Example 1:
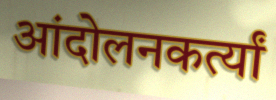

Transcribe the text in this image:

आंदोलनकर्त्यां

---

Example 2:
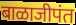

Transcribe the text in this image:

बाळाजीपंत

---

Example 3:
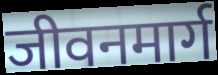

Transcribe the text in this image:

जीवनमार्ग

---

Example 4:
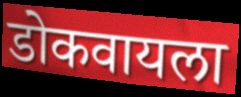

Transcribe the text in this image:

डोकवायला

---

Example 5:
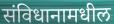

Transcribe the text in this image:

संविधानामधील